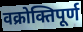
वक्रोक्तिपूर्ण